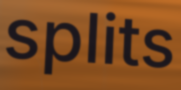
splits